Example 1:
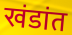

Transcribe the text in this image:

खंडांत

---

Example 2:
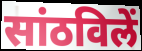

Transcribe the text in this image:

सांठविलें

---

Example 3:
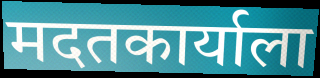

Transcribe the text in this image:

मदतकार्याला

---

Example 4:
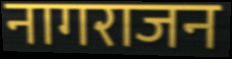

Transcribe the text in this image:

नागराजन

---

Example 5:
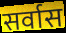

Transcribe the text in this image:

सर्वास